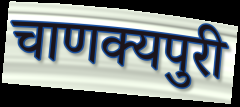
चाणक्यपुरी